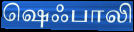
ஷெஃபாலி